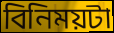
বিনিময়টা